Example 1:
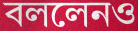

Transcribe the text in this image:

বললেনও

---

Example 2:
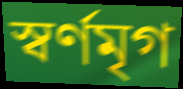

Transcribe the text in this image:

স্বর্ণমৃগ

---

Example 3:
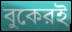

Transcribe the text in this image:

বুকেরই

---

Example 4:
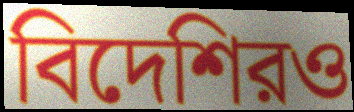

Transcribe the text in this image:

বিদেশিরও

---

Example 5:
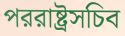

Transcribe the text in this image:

পররাষ্ট্রসচিব